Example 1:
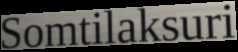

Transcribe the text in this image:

Somtilaksuri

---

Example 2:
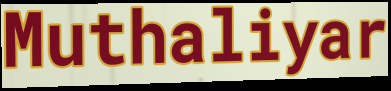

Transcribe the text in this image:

Muthaliyar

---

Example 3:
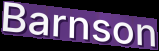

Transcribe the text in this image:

Barnson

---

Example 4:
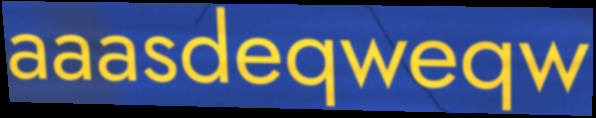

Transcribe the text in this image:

aaasdeqweqw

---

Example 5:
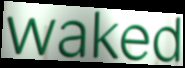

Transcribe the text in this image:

waked